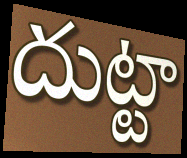
దుట్టా